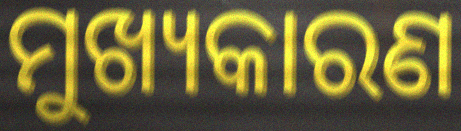
ମୁଖ୍ୟକାରଣ